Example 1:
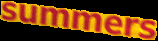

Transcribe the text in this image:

summers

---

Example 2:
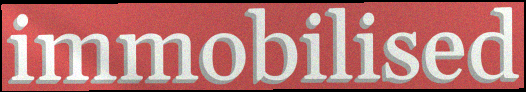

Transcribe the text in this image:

immobilised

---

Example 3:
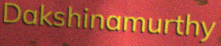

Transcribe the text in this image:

Dakshinamurthy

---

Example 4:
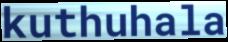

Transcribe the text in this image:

kuthuhala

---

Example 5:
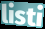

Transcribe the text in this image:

listi